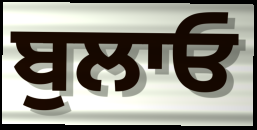
ਬੁਲਾਓ